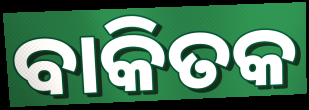
ବାକିତକ